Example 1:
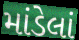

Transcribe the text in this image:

માંડેલાં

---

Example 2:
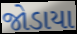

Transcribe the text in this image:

જોડાયા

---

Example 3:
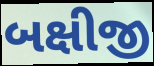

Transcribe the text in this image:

બક્ષીજી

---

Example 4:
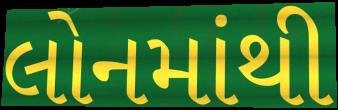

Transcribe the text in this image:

લોનમાંથી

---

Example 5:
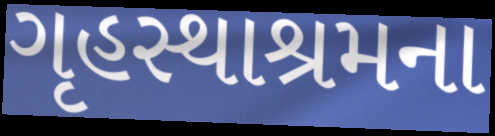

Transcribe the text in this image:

ગૃહસ્થાશ્રમના